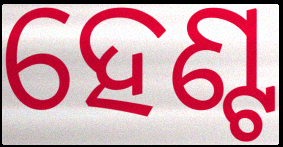
ହେଣ୍ଟ